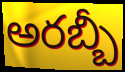
అరబ్బీ